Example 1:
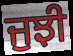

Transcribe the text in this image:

ਜੁਝੀ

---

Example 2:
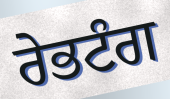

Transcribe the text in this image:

ਰੇਭਟੰਗ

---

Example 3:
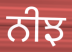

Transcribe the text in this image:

ਨੀਝ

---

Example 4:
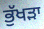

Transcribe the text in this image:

ਭੁੱਖੜਾ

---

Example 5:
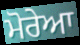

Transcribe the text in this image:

ਮੋਰੇਆ